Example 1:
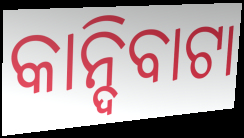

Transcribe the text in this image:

କାନ୍ଦିବାଟା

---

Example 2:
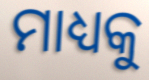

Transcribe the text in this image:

ମାଧ୍ୟକୁ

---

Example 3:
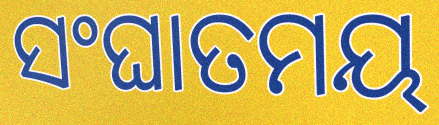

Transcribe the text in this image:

ସଂଘାତମୟ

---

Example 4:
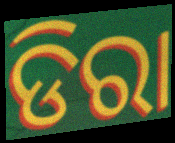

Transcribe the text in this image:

ଡିରା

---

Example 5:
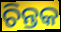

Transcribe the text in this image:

ଚିନ୍ତକ